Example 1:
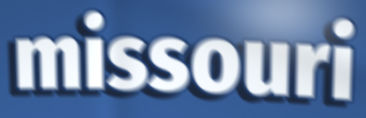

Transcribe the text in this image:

missouri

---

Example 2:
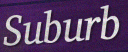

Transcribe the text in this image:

Suburb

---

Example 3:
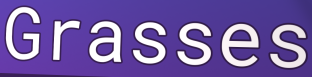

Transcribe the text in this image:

Grasses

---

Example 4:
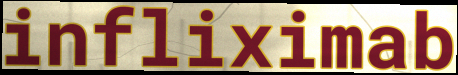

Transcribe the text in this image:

infliximab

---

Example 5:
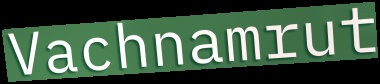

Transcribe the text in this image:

Vachnamrut